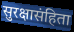
सुरक्षासंहिता